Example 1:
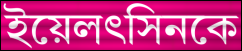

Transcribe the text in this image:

ইয়েলৎসিনকে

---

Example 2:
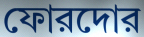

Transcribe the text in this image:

ফোরদোর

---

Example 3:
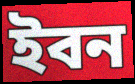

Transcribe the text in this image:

ইবন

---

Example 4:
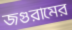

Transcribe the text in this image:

জগুরামের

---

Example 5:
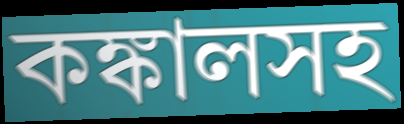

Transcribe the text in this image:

কঙ্কালসহ